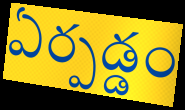
ఏర్పడ్డం